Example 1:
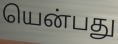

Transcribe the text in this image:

யென்பது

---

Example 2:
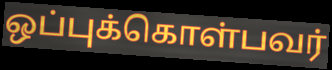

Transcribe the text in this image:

ஒப்புக்கொள்பவர்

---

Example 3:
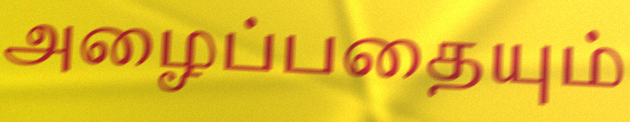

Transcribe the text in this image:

அழைப்பதையும்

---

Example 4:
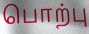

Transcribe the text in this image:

பொற்பு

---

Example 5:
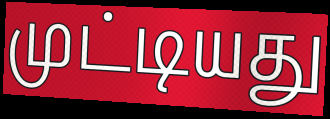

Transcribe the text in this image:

முட்டியது